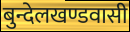
बुन्देलखण्डवासी